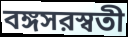
বঙ্গসরস্বতী